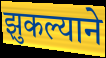
झुकल्याने